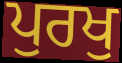
ਪੁਰਖੁ